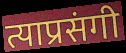
त्याप्रसंगी